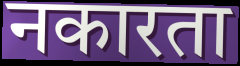
नकारता